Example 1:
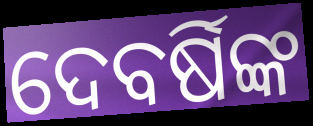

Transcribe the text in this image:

ଦେବର୍ଷିଙ୍କ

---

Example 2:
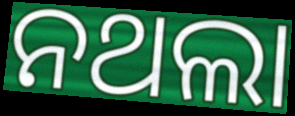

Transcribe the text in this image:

ନଥଲା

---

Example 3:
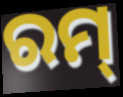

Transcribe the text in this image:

ରମ୍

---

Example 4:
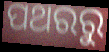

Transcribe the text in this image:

ପଥରରୁ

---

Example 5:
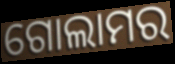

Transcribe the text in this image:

ଗୋଲାମର